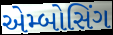
એમ્બોસિંગ